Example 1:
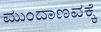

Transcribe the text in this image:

ಮುಂದಾಣವಕ್ಕೆ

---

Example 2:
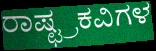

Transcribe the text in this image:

ರಾಷ್ಟ್ರಕವಿಗಳ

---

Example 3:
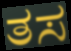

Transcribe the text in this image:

ತಸ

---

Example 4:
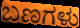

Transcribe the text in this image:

ಬಣಗಳು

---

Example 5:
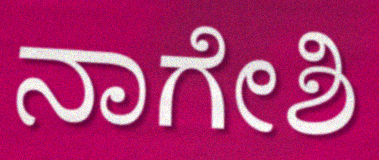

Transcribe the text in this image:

ನಾಗೇಶಿ